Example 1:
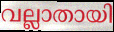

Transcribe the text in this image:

വല്ലാതായി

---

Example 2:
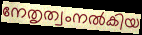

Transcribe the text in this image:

നേതൃത്വംനൽകിയ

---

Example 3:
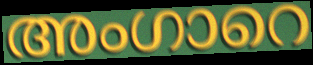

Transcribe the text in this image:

അംഗാറെ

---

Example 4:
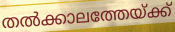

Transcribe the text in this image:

തൽക്കാലത്തേയ്ക്ക്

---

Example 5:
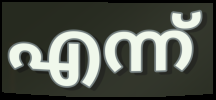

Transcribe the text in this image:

എന്ന്